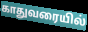
காதுவரையில்